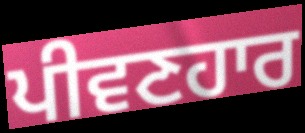
ਪੀਵਣਹਾਰ